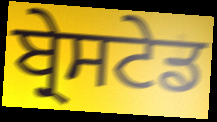
ਬ੍ਰੇਸਟੇਡ